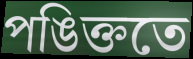
পঙিক্ততে